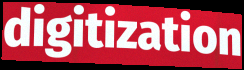
digitization